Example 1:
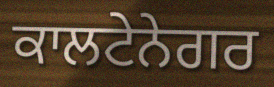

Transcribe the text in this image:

ਕਾਲਟੇਨੇਗਰ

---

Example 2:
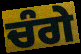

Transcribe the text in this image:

ਚੰਗੇ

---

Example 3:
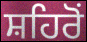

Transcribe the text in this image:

ਸ਼ਹਿਰੋਂ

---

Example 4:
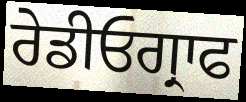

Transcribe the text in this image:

ਰੇਡੀਓਗ੍ਰਾਫ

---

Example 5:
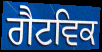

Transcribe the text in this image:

ਗੈਟਵਿਕ